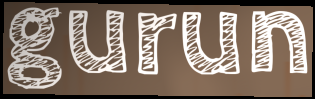
gurun